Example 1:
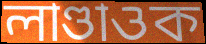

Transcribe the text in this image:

লাণ্ডাওক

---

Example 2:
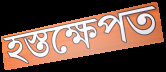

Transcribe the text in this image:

হস্তক্ষেপত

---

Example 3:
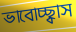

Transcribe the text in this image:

ভাবোচ্ছ্বাস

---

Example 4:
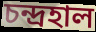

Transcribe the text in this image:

চন্দ্ৰহাল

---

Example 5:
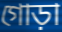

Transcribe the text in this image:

গোড়া